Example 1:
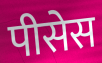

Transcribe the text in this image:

पीसेस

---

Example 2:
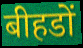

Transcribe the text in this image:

बीहडों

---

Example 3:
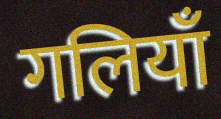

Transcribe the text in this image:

गलियाँ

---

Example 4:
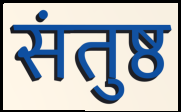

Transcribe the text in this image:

संतुष्ठ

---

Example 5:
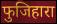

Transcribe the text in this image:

फुजिहारा